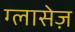
ग्लासेज़